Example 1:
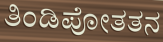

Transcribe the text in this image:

ತಿಂಡಿಪೋತತನ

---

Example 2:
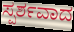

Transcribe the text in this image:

ಸ್ಪರ್ಶವಾದ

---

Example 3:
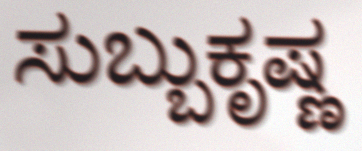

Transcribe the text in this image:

ಸುಬ್ಬುಕೃಷ್ಣ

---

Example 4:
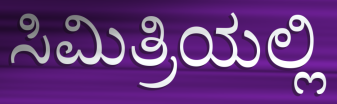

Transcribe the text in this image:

ಸಿಮಿತ್ರಿಯಲ್ಲಿ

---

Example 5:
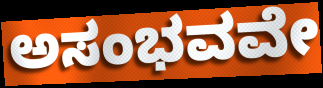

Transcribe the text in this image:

ಅಸಂಭವವೇ